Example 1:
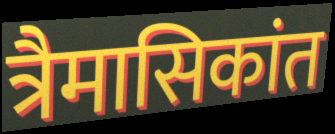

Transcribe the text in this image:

त्रैमासिकांत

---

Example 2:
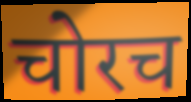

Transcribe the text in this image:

चोरच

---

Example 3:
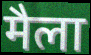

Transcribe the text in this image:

मैला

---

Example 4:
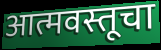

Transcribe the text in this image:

आत्मवस्तूचा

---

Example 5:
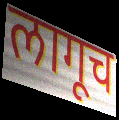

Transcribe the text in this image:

लागूच